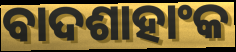
ବାଦଶାହାଂକ